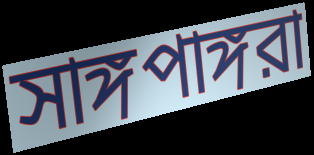
সাঙ্গপাঙ্গরা